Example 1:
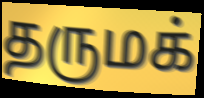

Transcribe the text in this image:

தருமக்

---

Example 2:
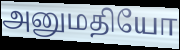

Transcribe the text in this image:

அனுமதியோ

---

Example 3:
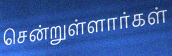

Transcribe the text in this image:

சென்றுள்ளார்கள்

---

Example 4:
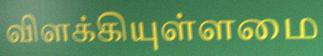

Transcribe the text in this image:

விளக்கியுள்ளமை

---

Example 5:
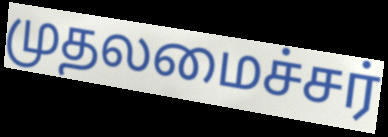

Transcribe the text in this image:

முதலமைச்சர்